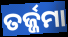
ତର୍ଜ୍ଜମା